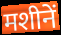
मशीनें